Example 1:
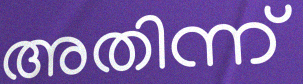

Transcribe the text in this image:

അതിന്ന്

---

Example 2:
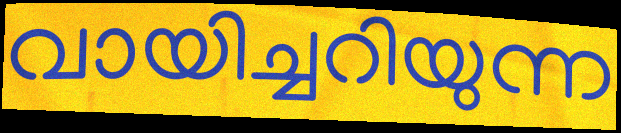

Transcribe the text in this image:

വായിച്ചറിയുന്ന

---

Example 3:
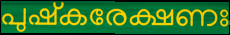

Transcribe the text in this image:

പുഷ്കരേക്ഷണഃ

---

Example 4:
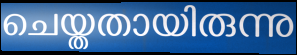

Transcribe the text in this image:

ചെയ്തതായിരുന്നു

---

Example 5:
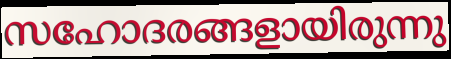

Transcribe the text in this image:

സഹോദരങ്ങളായിരുന്നു